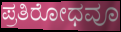
ಪ್ರತಿರೋಧವೂ